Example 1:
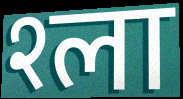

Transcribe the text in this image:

श्ला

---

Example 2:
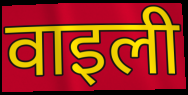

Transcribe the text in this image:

वाइली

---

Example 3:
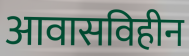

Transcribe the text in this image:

आवासविहीन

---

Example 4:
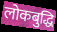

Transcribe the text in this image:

लोकबुद्धि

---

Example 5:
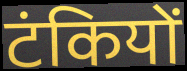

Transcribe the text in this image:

टंकियों